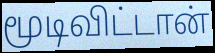
மூடிவிட்டான்